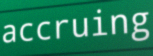
accruing